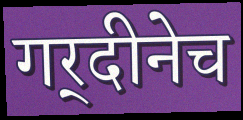
गर्दीनेच